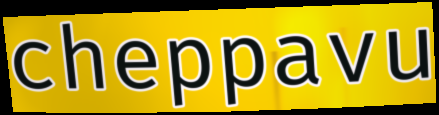
cheppavu